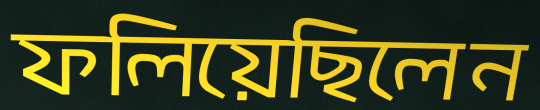
ফলিয়েছিলেন